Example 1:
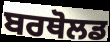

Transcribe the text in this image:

ਬਰਥੋਲਡ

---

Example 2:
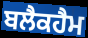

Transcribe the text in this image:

ਬਲੈਕਹੈਮ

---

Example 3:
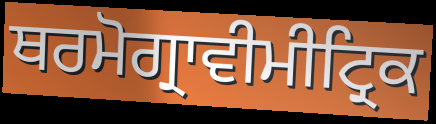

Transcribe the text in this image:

ਥਰਮੋਗ੍ਰਾਵੀਮੀਟ੍ਰਿਕ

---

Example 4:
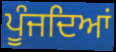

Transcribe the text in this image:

ਪੂੰਜਦਿਆਂ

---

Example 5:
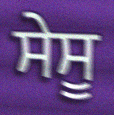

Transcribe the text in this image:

ਸੇਸੂ